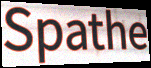
Spathe